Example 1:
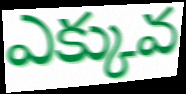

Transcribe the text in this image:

ఎక్కువ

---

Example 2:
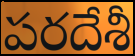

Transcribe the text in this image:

పరదేశీ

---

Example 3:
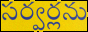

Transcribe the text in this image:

సర్వర్లను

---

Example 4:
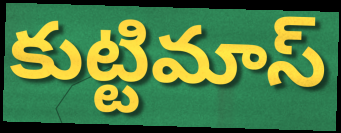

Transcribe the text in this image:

కుట్టిమాస్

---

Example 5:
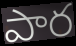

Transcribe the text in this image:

పార